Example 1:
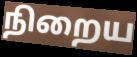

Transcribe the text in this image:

நிறைய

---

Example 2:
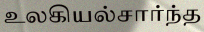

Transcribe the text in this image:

உலகியல்சார்ந்த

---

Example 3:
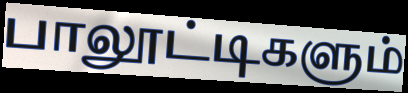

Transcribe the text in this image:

பாலூட்டிகளும்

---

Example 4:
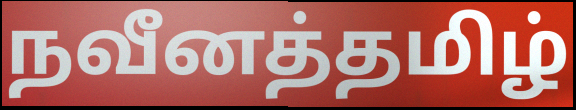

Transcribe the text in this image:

நவீனத்தமிழ்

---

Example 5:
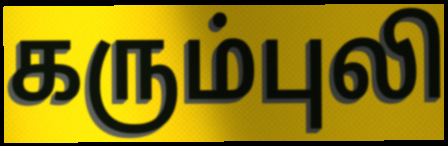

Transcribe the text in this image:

கரும்புலி